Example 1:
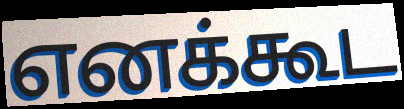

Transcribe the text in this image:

எனக்கூட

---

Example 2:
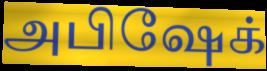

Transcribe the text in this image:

அபிஷேக்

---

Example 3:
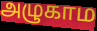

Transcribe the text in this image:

அழுகாம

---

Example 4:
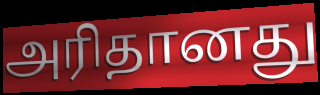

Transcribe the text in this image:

அரிதானது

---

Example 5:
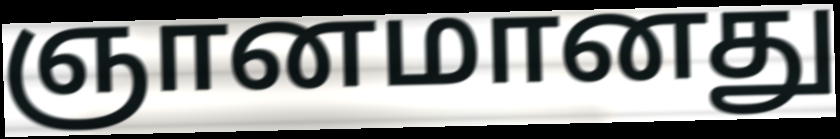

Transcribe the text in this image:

ஞானமானது